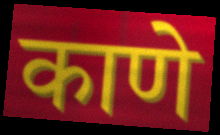
काणे